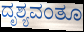
ದೃಶ್ಯವಂತೂ